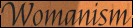
Womanism